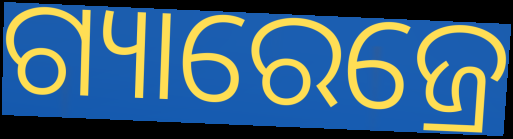
ଗ୍ୟାରେଜ୍ରେ